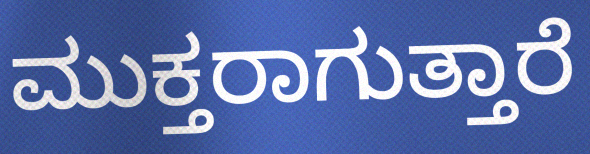
ಮುಕ್ತರಾಗುತ್ತಾರೆ